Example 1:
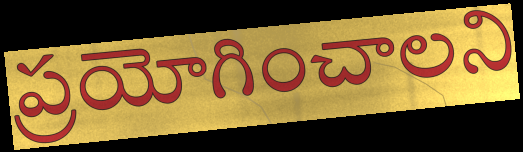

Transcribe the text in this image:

ప్రయోగించాలని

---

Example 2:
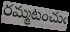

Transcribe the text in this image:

రమ్మటంచుఁ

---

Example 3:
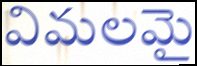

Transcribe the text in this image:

విమలమై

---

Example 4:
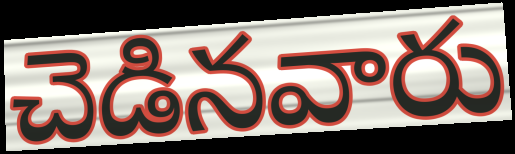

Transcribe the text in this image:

చెడినవారు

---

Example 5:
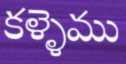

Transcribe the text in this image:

కళ్ళెము